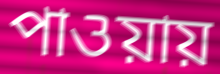
পাওয়ায়